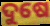
ଦୁଷେ